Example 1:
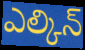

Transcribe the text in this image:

ఎల్కిన్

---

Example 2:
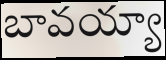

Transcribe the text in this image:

బావయ్యా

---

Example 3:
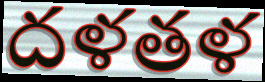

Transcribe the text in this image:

దళతళ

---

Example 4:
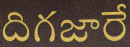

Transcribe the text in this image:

దిగజారే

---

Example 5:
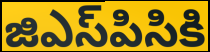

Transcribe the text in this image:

జిఎస్‌పిసికి